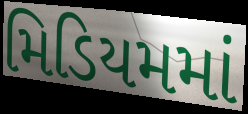
મિડિયમમાં